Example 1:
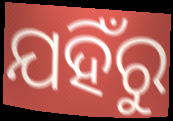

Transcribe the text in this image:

ଯହିଁରୁ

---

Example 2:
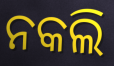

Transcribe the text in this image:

ନକଲି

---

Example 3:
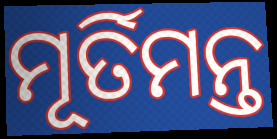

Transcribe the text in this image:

ମୂର୍ତିମନ୍ତ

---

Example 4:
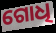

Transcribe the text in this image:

ଗୋଧି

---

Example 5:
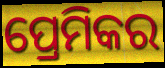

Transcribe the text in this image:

ପ୍ରେମିକର